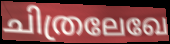
ചിത്രലേഖേ